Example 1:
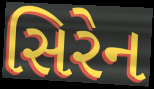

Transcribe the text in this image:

સિરેન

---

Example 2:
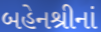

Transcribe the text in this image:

બહેનશ્રીનાં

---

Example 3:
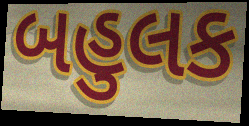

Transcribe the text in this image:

બહુલક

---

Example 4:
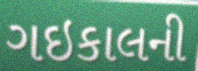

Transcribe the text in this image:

ગઇકાલની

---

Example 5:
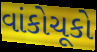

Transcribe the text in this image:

વાંકોચૂકો